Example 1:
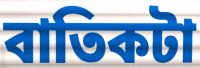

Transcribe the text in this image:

বাতিকটা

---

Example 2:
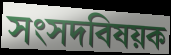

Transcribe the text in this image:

সংসদবিষয়ক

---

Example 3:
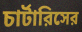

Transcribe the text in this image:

চার্টারিসের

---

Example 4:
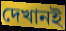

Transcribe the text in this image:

দেখানই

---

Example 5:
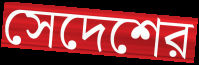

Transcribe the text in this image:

সেদেশের